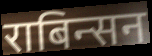
राबिन्सन